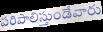
పరిపాలిస్తుండేవారు